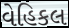
વેહિકલ